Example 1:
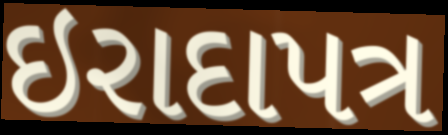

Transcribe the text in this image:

ઇરાદાપત્ર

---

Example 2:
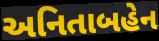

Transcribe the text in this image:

અનિતાબહેન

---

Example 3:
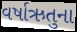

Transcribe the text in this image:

વર્ષાઋતુના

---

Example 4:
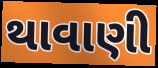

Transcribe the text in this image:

થાવાણી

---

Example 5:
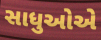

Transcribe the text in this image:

સાધુઓએ